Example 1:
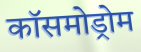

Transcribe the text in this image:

कॉसमोड्रोम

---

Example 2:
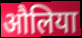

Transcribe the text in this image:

औलिया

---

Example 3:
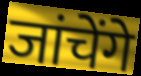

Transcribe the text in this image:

जांचेंगे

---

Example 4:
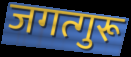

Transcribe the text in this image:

जगत्गुरू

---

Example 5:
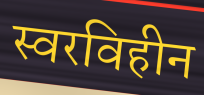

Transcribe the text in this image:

स्वरविहीन